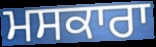
ਮਸਕਾਰਾ